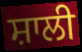
ਸ਼ਾਲੀ